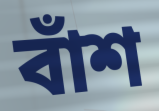
বাঁশ